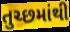
તુચ્છમાંથી